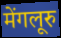
मेंगलूरु